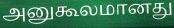
அனுகூலமானது